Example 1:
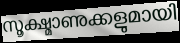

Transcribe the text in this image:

സൂക്ഷ്മാണുക്കളുമായി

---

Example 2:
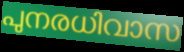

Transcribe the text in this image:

പുനരധിവാസ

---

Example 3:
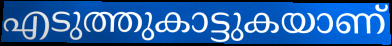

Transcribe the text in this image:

എടുത്തുകാട്ടുകയാണ്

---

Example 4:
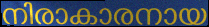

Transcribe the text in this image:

നിരാകാരനായ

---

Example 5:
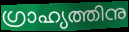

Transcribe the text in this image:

ഗ്രാഹ്യത്തിനു